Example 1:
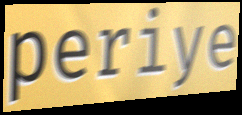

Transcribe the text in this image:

periye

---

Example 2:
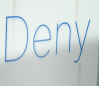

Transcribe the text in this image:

Deny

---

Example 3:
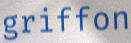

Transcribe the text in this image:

griffon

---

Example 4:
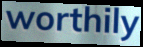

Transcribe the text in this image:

worthily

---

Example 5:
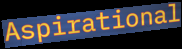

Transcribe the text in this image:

Aspirational